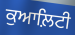
ਕੁਆਲ਼ਿਟੀ